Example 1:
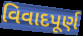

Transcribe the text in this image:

વિવાદપૂર્ણ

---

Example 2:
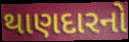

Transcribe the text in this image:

થાણદારનો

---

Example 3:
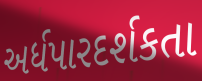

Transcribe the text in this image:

અર્ધપારદર્શકતા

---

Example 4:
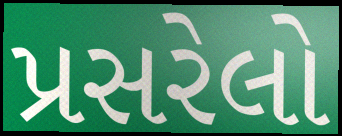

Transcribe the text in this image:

પ્રસરેલો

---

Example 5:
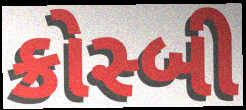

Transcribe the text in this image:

ક્રોસ્બી